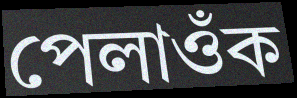
পেলাওঁক